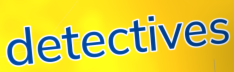
detectives